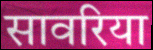
सावरिया